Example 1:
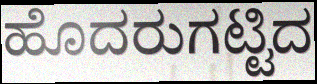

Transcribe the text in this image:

ಹೊದರುಗಟ್ಟಿದ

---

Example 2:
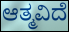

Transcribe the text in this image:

ಆತ್ಮವಿದೆ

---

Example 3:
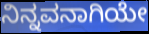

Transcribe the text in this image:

ನಿನ್ನವನಾಗಿಯೇ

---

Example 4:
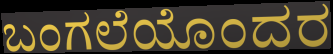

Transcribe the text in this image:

ಬಂಗಲೆಯೊಂದರ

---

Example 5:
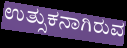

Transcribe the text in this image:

ಉತ್ಸುಕನಾಗಿರುವ